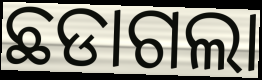
ଛଡାଗଲା